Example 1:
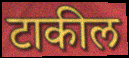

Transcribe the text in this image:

टाकील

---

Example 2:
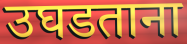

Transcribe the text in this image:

उघडताना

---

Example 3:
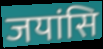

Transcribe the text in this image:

जयांसि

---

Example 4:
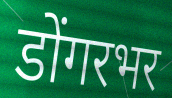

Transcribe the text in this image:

डोंगरभर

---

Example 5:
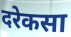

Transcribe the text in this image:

दरेकसा